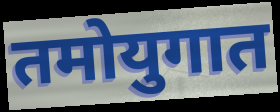
तमोयुगात